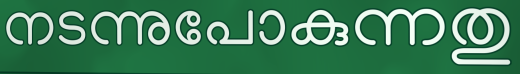
നടന്നുപോകുന്നതു